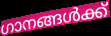
ഗാനങ്ങൾക്ക്